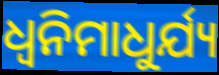
ଧ୍ୱନିମାଧୁର୍ଯ୍ୟ